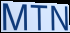
MTN